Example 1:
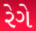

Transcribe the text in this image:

રેગે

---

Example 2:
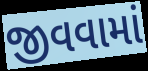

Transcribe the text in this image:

જીવવામાં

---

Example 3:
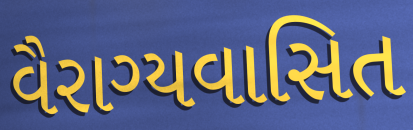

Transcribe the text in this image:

વૈરાગ્યવાસિત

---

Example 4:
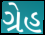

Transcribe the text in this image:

ગ્રેહ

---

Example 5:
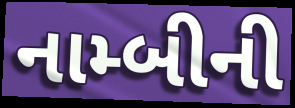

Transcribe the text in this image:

નામ્બીની